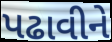
પઢાવીને